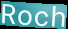
Roch